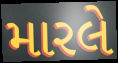
મારલે